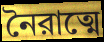
নৈরাত্মে